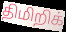
திமிறிக்